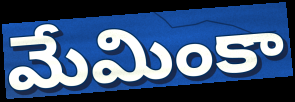
మేమింకా